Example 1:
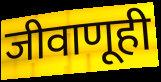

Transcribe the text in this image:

जीवाणूही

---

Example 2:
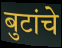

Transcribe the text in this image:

बुटांचे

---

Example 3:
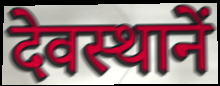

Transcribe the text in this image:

देवस्थानें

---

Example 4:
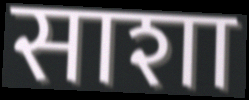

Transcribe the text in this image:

साशा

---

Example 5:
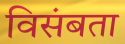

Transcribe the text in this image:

विसंबता